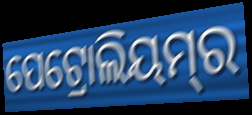
ପେଟ୍ରୋଲିୟମ୍‌ର